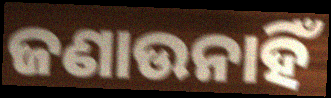
ଜଣାଉନାହିଁ